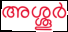
അശ്ശൂർ